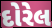
દોરેલ